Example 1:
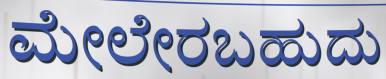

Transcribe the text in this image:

ಮೇಲೇರಬಹುದು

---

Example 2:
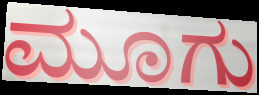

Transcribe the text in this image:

ಮೂಗು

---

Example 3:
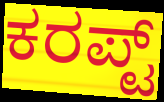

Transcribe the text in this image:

ಕರಪ್ಟ್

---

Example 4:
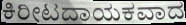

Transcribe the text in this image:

ಕಿರೀಟದಾಯಕವಾದ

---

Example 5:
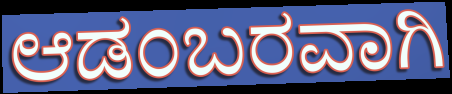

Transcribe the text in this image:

ಆಡಂಬರವಾಗಿ